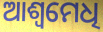
ଆଶ୍ୱମେଧି